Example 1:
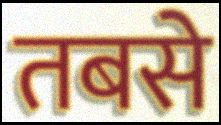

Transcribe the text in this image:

तबसे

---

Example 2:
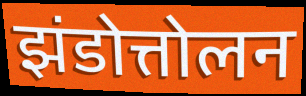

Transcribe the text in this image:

झंडोत्तोलन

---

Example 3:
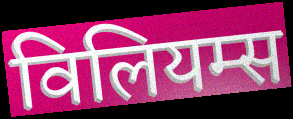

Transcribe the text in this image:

विलियम्स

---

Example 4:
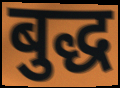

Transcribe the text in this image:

बुद्ध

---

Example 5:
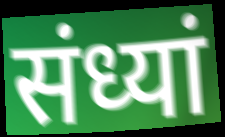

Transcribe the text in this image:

संध्यां